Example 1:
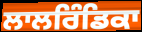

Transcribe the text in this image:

ਲਾਲਰਿੰਡਿਕਾ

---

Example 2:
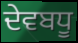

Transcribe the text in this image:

ਦੇਵਬਧੂ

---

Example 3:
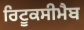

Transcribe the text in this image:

ਰਿਟੂਕਸੀਮੈਬ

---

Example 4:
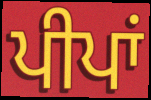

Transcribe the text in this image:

ਪੀਪਾਂ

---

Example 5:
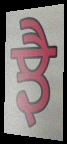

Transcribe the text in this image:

ਝੈ